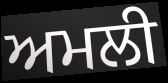
ਅਮਲੀ